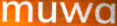
muwa